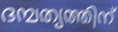
ദമ്പത്യത്തിന്